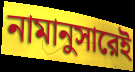
নামানুসারেই